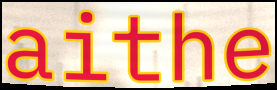
aithe